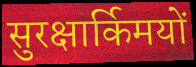
सुरक्षार्किमयों